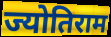
ज्योतिराम